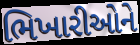
ભિખારીઓને